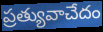
ప్రత్యువాచేదం